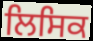
ਲਿਸਿਕ